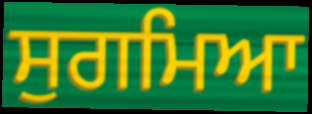
ਸੁਗਮਿਆ